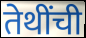
तेथींची